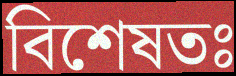
বিশেষতঃ